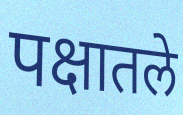
पक्षातले